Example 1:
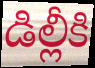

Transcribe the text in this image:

డిల్లీకి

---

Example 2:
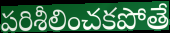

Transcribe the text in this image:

పరిశీలించకపోతే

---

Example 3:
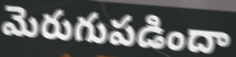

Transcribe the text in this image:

మెరుగుపడిందా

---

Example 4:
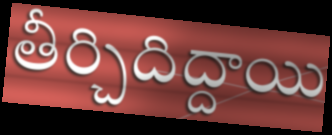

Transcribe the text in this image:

తీర్చిదిద్దాయి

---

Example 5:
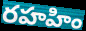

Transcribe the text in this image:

రహహిం